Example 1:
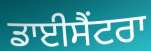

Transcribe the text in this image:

ਡਾਈਸੈਂਟਰਾ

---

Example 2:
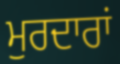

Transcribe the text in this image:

ਮੁਰਦਾਰਾਂ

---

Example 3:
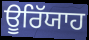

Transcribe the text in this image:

ਊਰਿੱਯਾਹ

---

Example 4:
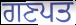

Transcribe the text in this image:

ਗਣਪਤ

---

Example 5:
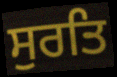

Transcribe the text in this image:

ਸੁਰਤਿ